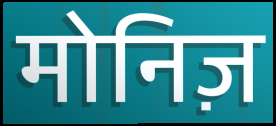
मोनिज़